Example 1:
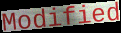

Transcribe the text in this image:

Modified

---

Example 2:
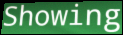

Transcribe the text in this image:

Showing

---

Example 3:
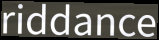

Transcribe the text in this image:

riddance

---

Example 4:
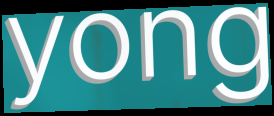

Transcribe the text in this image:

yong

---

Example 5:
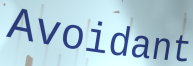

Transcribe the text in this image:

Avoidant